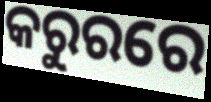
କରୁରରେ